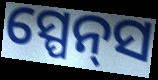
ସ୍ପେନ୍‌ସ